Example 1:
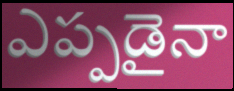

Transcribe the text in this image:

ఎప్పడైనా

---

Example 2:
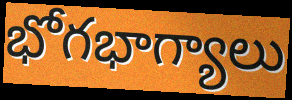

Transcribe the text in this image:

భోగభాగ్యాలు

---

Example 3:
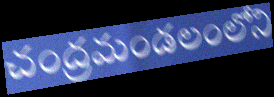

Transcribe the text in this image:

చంద్రమండలంలోని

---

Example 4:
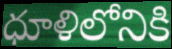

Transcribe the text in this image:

ధూళిలోనికి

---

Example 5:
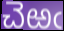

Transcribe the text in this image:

చెఱఁ